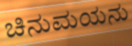
ಚಿನುಮಯನು